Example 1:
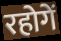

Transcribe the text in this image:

रहोगें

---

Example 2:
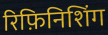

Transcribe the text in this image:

रिफ़िनिशिंग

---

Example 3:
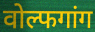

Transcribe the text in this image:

वोल्फगांग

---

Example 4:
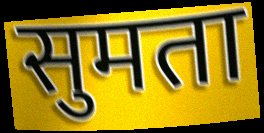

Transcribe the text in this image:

सुमता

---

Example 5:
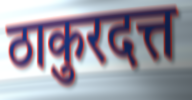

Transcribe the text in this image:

ठाकुरदत्त